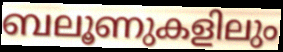
ബലൂണുകളിലും